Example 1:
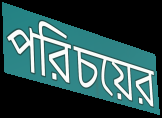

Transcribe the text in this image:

পরিচয়ের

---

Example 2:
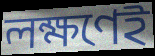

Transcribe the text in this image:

লক্ষণেই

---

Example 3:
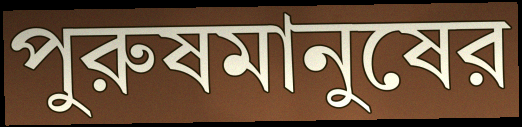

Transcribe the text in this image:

পুরুষমানুষের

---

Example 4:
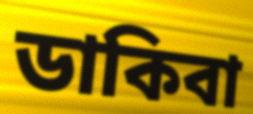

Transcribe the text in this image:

ডাকিবা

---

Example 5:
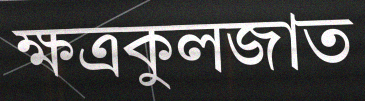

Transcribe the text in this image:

ক্ষত্রকুলজাত